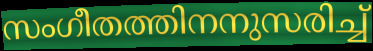
സംഗീതത്തിനനുസരിച്ച്